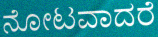
ನೋಟವಾದರೆ